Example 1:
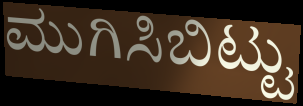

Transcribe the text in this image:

ಮುಗಿಸಿಬಿಟ್ಟು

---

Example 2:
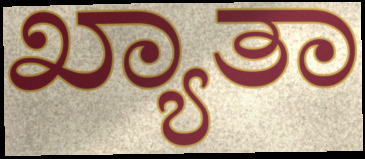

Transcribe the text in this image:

ಖ್ಯಾತಾ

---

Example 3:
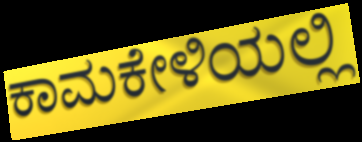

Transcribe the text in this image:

ಕಾಮಕೇಳಿಯಲ್ಲಿ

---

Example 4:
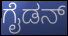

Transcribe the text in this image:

ಗೈಡನ್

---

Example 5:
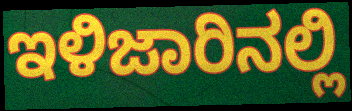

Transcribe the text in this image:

ಇಳಿಜಾರಿನಲ್ಲಿ